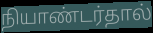
நியாண்டர்தால்